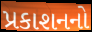
પ્રકાશનનો